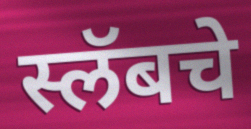
स्लॅबचे